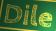
Dile